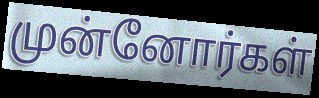
முன்னோர்கள்